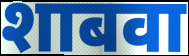
शाबवा